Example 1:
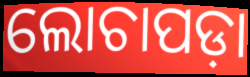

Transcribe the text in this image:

ଲୋଚାପଡ଼ା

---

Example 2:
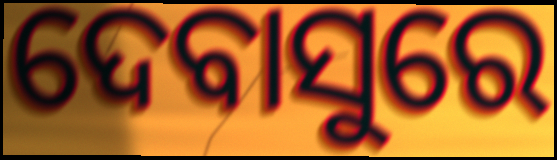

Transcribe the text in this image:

ଦେବାସୁରେ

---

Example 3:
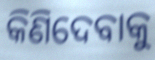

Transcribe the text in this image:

କିଣିଦେବାକୁ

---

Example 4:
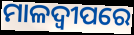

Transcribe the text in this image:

ମାଳଦ୍ବୀପରେ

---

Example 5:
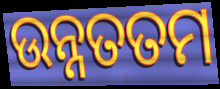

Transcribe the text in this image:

ଉନ୍ନତତମ